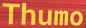
Thumo